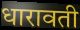
धारावती